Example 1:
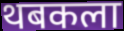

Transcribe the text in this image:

थबकला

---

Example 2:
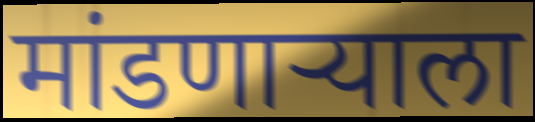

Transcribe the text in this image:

मांडणाऱ्याला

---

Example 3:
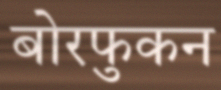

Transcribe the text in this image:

बोरफुकन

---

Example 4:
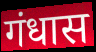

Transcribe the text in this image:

गंधास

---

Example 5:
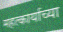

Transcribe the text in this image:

महत्कार्याच्या